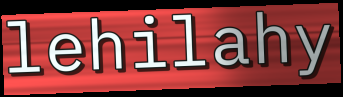
lehilahy